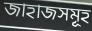
জাহাজসমূহ